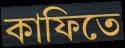
কাফিতে